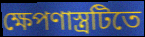
ক্ষেপণাস্ত্রটিতে